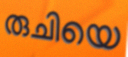
രുചിയെ